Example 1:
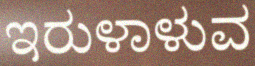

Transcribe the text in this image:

ಇರುಳಾಳುವ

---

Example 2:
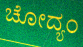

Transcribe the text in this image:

ಚೋದ್ಯಂ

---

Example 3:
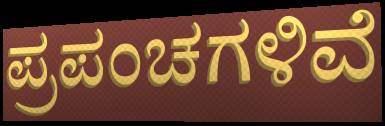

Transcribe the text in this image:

ಪ್ರಪಂಚಗಳಿವೆ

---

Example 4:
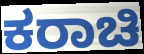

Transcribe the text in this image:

ಕರಾಚಿ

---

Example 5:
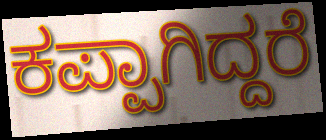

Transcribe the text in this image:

ಕಪ್ಪಾಗಿದ್ದರೆ